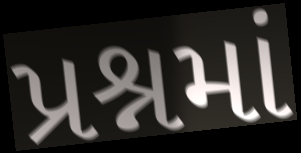
પ્રશ્નમાં